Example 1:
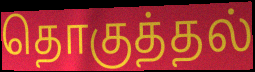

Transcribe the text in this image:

தொகுத்தல்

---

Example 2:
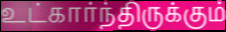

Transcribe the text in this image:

உட்கார்ந்திருக்கும்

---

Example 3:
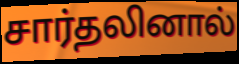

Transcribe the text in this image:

சார்தலினால்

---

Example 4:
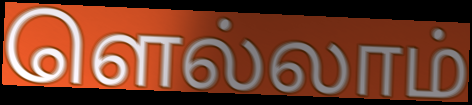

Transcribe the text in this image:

ளெல்லாம்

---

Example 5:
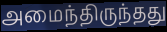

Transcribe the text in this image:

அமைந்திருந்தது